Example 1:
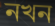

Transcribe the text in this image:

নখন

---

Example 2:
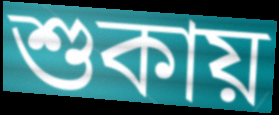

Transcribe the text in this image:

শুকায়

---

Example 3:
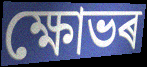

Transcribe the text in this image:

ক্ষোভৰ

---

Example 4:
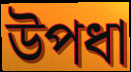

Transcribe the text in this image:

উপধা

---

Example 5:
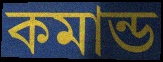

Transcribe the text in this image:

কমান্ড